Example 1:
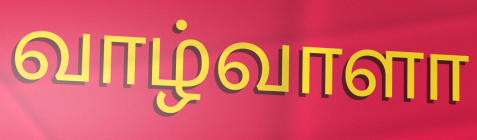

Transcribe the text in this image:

வாழ்வாளா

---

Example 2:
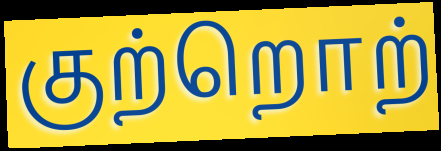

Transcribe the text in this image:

குற்றொற்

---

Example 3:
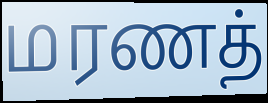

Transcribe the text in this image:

மரணத்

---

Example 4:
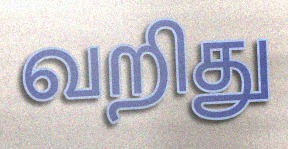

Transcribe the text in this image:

வறிது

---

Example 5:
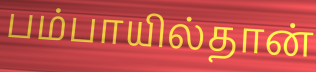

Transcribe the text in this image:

பம்பாயில்தான்